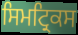
ਸਿਮਟ੍ਰਿਕਸ